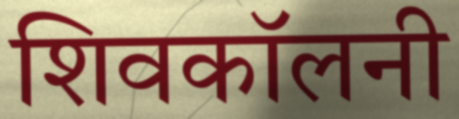
शिवकॉलनी